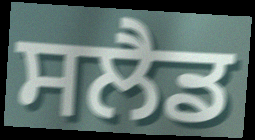
ਸਲੈਡ